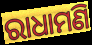
ରାଧାମଣି